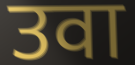
उवा